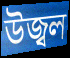
উজ্বল